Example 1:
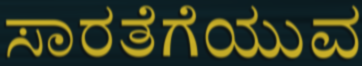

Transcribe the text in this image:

ಸಾರತೆಗೆಯುವ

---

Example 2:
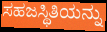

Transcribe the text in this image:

ಸಹಜಸ್ಥಿತಿಯನ್ನು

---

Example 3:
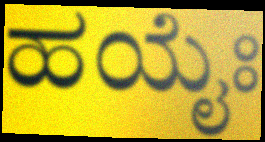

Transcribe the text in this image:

ಹಯೈಃ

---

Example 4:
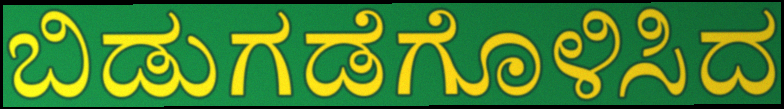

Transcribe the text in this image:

ಬಿಡುಗಡೆಗೊಳಿಸಿದ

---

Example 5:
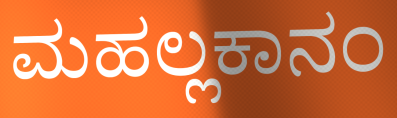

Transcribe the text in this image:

ಮಹಲ್ಲಕಾನಂ